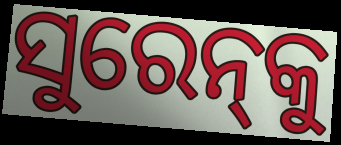
ସୁରେନ୍‌କୁ